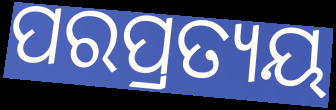
ପରପ୍ରତ୍ୟୟ